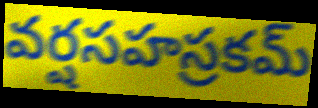
వర్షసహస్రకమ్